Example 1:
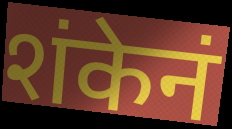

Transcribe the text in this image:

शंकेनं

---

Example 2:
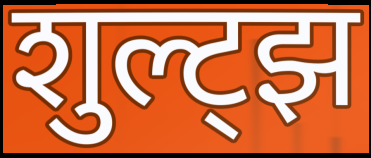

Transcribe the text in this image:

शुल्ट्झ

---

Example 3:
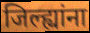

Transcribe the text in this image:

जिल्ह्यांना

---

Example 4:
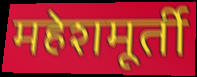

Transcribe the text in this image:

महेशमूर्ती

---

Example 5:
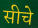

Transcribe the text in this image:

सीचे